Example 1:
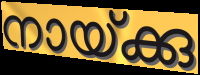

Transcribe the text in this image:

നായ്‌ക്കു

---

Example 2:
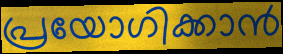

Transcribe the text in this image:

പ്രയോഗിക്കാൻ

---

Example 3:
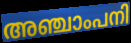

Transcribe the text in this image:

അഞ്ചാംപനി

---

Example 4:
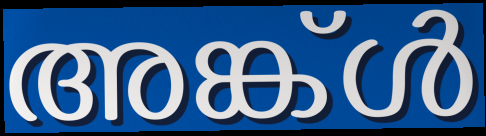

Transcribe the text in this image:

അങ്ക്ൾ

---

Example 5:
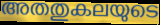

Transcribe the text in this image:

അതതുകലയുടെ